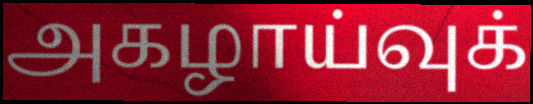
அகழாய்வுக்